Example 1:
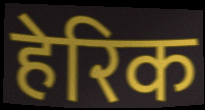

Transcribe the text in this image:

हेरिक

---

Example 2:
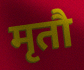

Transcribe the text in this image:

मृतौ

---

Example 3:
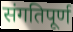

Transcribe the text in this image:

संगतिपूर्ण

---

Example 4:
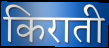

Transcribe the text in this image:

किराती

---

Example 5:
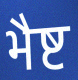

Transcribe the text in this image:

भैष्ट